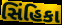
સિંહિકા